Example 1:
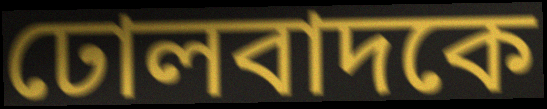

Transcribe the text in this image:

ঢোলবাদকে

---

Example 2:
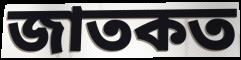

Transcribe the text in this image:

জাতকত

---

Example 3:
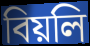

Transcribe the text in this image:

বিয়লি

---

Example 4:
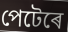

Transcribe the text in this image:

পেটেৰে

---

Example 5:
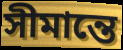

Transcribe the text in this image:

সীমান্তে